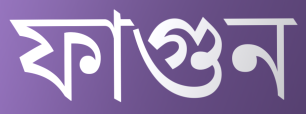
ফাগুন